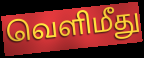
வெளிமீது